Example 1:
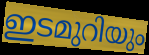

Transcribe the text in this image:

ഇടമുറിയും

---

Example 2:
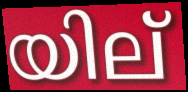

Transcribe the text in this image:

യില്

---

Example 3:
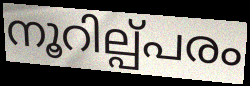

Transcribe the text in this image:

നൂറില്പ്പരം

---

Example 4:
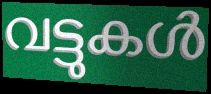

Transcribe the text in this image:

വട്ടുകൾ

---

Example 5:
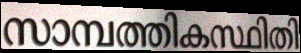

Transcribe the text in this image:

സാമ്പത്തികസ്ഥിതി